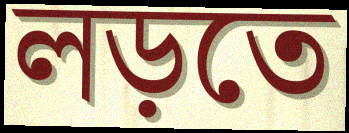
লড়তে